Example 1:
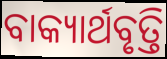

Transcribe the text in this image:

ବାକ୍ୟାର୍ଥବୃତ୍ତି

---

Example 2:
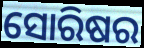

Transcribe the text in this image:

ସୋରିଷର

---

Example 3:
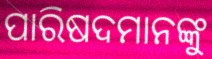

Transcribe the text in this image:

ପାରିଷଦମାନଙ୍କୁ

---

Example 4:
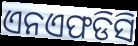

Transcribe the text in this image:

ଏନଏଫଡିସି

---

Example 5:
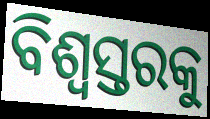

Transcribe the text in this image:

ବିଶ୍ୱସ୍ତରକୁ